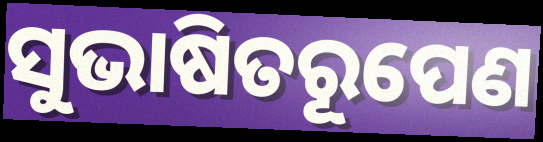
ସୁଭାଷିତରୂପେଣ